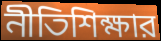
নীতিশিক্ষার